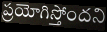
ప్రయోగిస్తోందని